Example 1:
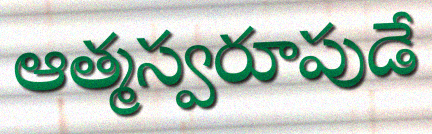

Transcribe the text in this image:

ఆత్మస్వరూపుడే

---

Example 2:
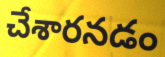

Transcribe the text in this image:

చేశారనడం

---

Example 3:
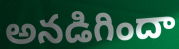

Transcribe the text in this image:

అనడిగిందా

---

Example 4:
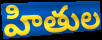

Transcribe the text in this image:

హితుల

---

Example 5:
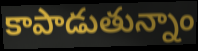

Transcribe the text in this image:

కాపాడుతున్నాం